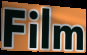
Film